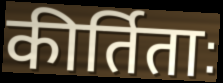
कीर्तिताः